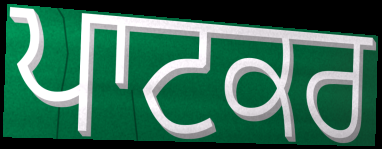
ਪਾਟਕਰ